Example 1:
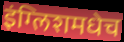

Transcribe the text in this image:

इंग्लिशमधेच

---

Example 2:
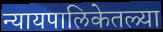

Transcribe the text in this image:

न्यायपालिकेतल्या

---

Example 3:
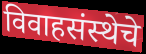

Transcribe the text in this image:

विवाहसंस्थेचे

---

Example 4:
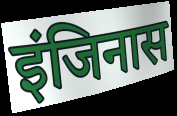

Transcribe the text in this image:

इंजिनास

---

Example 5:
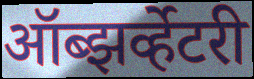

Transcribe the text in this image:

ऑब्झर्व्हेटरी